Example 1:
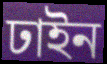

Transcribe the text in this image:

ঢাইন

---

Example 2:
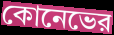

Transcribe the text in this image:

কোনেভের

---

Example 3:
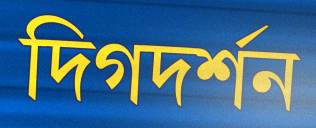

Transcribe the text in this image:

দিগদর্শন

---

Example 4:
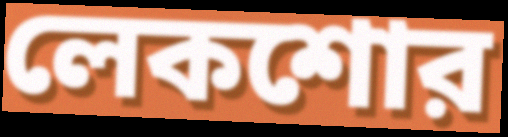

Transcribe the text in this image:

লেকশোর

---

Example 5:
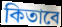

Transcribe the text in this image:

কিতাবে